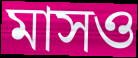
মাসও